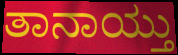
ತಾನಾಯ್ತು